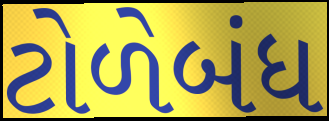
ટોળેબંધ